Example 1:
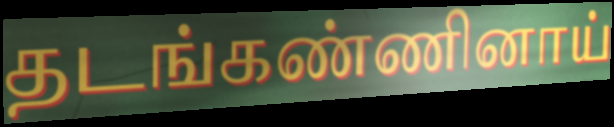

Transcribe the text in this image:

தடங்கண்ணினாய்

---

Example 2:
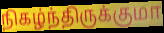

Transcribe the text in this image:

நிகழ்ந்திருக்குமா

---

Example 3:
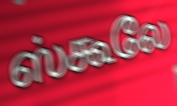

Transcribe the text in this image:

ஸ்கூலே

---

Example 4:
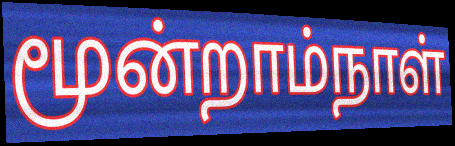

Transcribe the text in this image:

மூன்றாம்நாள்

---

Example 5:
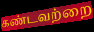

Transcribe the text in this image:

கண்டவற்றை